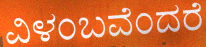
ವಿಳಂಬವೆಂದರೆ